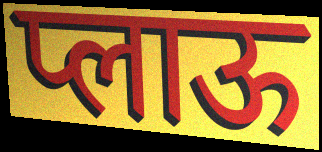
प्लाऊ